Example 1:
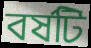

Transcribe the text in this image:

বর্ষটি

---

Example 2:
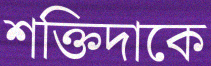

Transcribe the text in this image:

শক্তিদাকে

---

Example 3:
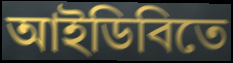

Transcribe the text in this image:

আইডিবিতে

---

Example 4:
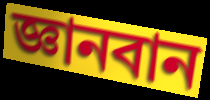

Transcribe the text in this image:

জ্ঞানবান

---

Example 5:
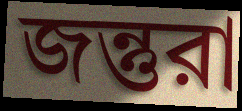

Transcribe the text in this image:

জন্তুরা